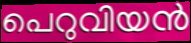
പെറുവിയൻ